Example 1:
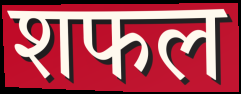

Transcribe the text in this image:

शफल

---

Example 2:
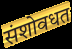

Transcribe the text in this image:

संशोवधत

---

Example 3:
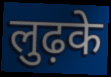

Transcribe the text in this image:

लुढ़के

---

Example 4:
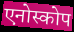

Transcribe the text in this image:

एनोस्कोप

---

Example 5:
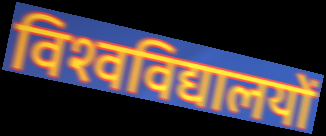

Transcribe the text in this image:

विश्वविद्यालयों